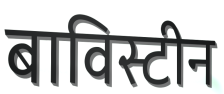
बाविस्टीन